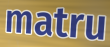
matru